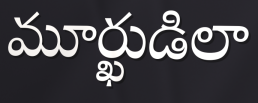
మూర్ఖుడిలా